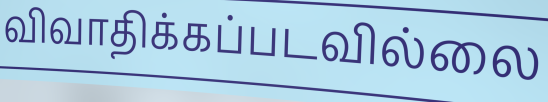
விவாதிக்கப்படவில்லை